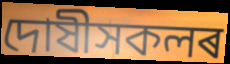
দোষীসকলৰ